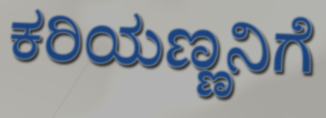
ಕರಿಯಣ್ಣನಿಗೆ